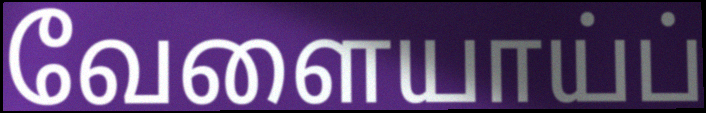
வேளையாய்ப்